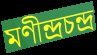
মণীন্দ্রচন্দ্র